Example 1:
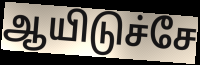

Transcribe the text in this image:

ஆயிடுச்சே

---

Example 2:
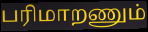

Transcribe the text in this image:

பரிமாறணும்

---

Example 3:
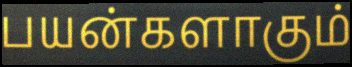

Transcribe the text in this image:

பயன்களாகும்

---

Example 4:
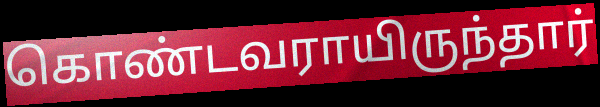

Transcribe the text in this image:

கொண்டவராயிருந்தார்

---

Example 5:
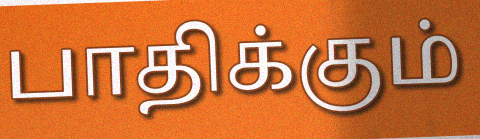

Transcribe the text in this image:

பாதிக்கும்